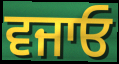
ਵਜਾਓ